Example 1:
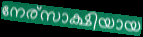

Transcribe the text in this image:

നേര്സാക്ഷിയായ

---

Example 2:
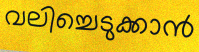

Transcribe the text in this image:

വലിച്ചെടുക്കാൻ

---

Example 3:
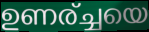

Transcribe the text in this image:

ഉണര്ച്ചയെ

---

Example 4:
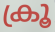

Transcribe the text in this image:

ക്രൂ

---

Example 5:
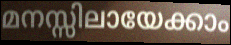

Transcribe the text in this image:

മനസ്സിലായേക്കാം